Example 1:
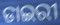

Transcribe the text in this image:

ଡାଇରୀ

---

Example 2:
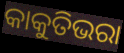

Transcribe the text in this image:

କାକୁତିଭରା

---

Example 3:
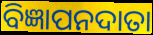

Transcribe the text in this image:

ବିଜ୍ଞାପନଦାତା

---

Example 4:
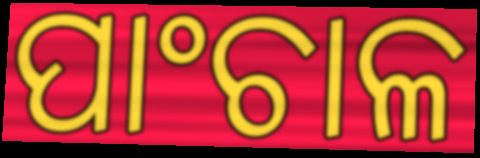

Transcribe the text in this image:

ପାଂଚାଳ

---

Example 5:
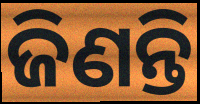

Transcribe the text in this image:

ଜିଣନ୍ତି